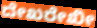
ದೇಖರೇಖೀ